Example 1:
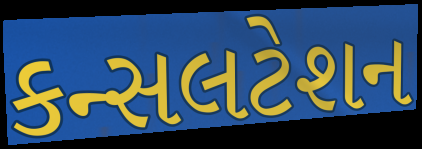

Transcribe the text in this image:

કન્સલટેશન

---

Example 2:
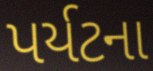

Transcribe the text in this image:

પર્યટના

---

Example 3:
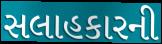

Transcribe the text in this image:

સલાહકારની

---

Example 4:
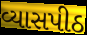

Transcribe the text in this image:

વ્યાસપીઠ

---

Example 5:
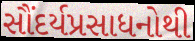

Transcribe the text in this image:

સૌંદર્યપ્રસાધનોથી